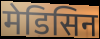
मेडिसिन